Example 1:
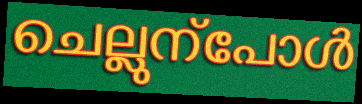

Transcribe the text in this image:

ചെല്ലുന്പോൾ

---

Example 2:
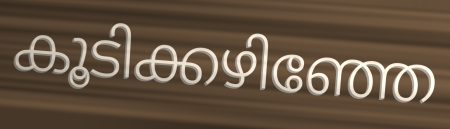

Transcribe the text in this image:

കൂടിക്കഴിഞ്ഞേ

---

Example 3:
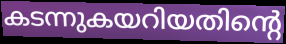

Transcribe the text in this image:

കടന്നുകയറിയതിന്റെ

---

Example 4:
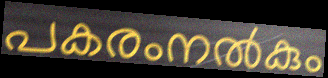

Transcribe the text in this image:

പകരംനൽകും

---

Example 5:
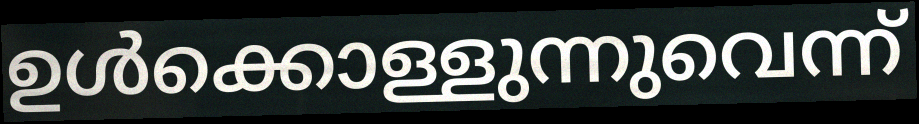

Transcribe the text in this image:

ഉൾക്കൊള്ളുന്നുവെന്ന്